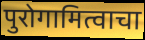
पुरोगामित्वाचा